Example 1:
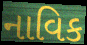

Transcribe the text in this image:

નાવિક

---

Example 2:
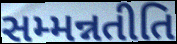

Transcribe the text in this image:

સમ્મન્નતીતિ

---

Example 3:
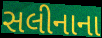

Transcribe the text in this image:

સલીનાના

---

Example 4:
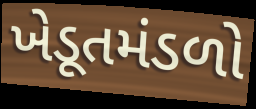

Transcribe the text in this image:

ખેડૂતમંડળો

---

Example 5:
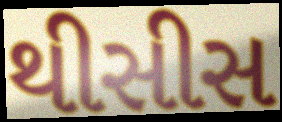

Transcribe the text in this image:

થીસીસ